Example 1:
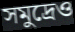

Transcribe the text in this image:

সমুদ্রেও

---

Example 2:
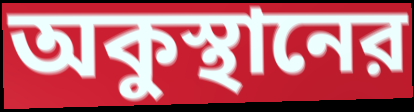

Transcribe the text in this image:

অকুস্থানের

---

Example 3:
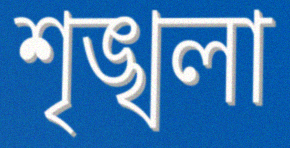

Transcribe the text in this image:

শৃঙ্খলা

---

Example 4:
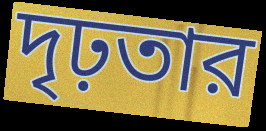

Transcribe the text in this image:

দৃঢ়তার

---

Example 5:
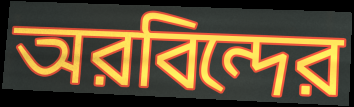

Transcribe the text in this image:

অরবিন্দের